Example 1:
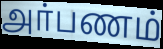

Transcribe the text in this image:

அர்பணம்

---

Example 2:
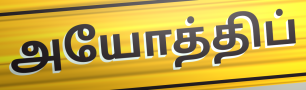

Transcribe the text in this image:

அயோத்திப்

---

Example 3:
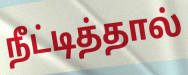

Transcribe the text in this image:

நீட்டித்தால்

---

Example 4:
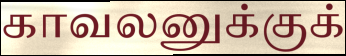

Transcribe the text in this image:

காவலனுக்குக்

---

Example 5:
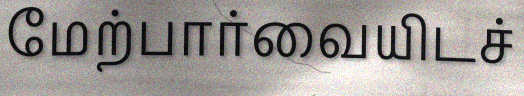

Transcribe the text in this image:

மேற்பார்வையிடச்